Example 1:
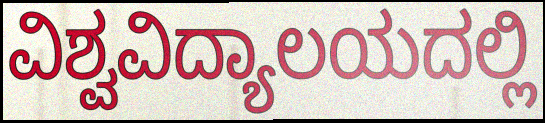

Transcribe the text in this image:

ವಿಶ್ವವಿದ್ಯಾಲಯದಲ್ಲಿ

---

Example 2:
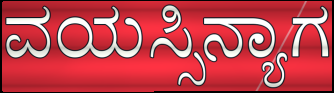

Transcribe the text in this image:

ವಯಸ್ಸಿನ್ಯಾಗ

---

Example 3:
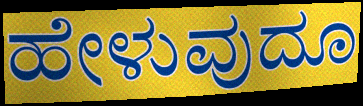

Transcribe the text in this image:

ಹೇಳುವುದೂ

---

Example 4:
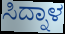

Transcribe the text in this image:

ಸಿದ್ನಾಳ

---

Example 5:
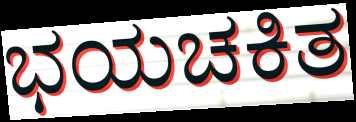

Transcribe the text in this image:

ಭಯಚಕಿತ